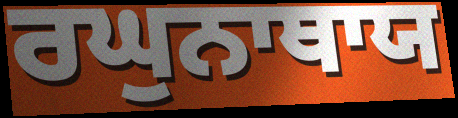
ਰਘੁਨਾਥਾਯ